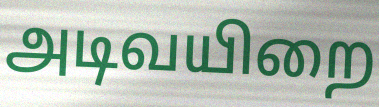
அடிவயிறை